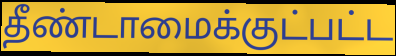
தீண்டாமைக்குட்பட்ட